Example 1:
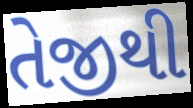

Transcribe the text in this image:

તેજીથી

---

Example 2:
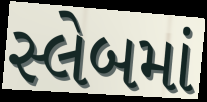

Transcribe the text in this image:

સ્લેબમાં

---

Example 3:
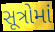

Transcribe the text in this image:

સૂત્રોમાં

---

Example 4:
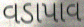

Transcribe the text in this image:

વડાપાવ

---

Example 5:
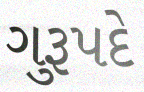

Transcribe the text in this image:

ગુરૂપદે